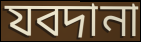
যবদানা